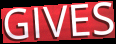
GIVES